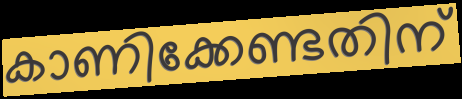
കാണിക്കേണ്ടതിന്